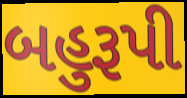
બહુરૂપી